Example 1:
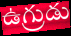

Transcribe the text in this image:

ఉగ్రుడు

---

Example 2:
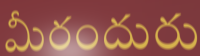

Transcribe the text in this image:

మీరందురు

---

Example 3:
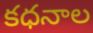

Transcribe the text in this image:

కధనాల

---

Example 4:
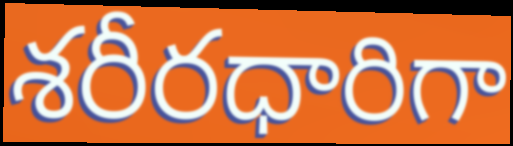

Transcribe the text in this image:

శరీరధారిగా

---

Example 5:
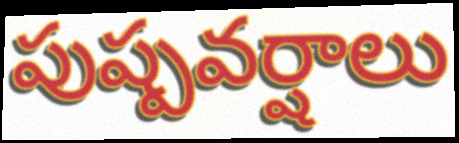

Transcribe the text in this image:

పుష్పవర్షాలు